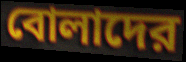
বোলাদের